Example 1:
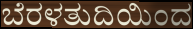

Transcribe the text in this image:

ಬೆರಳತುದಿಯಿಂದ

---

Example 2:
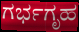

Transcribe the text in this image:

ಗರ್ಭಗೃಹ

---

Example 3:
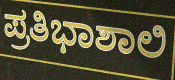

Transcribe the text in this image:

ಪ್ರತಿಭಾಶಾಲಿ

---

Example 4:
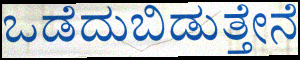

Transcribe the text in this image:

ಒಡೆದುಬಿಡುತ್ತೇನೆ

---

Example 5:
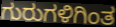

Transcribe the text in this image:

ಗುರುಗಳಿಗಿಂತ